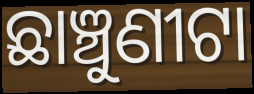
ଛାଞ୍ଚୁଣୀଟା